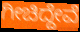
ಗೀಚಿದ್ದೇವೆ